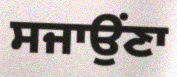
ਸਜਾਉਂਣਾ